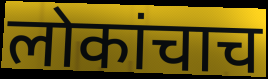
लोकांचाच